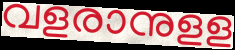
വളരാനുളള